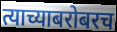
त्याच्याबरोबरच